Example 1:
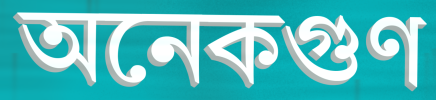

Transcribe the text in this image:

অনেকগুণ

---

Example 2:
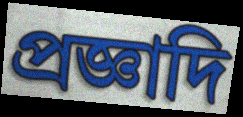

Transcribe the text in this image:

প্রজ্ঞাদি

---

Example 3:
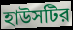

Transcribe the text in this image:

হাউসটির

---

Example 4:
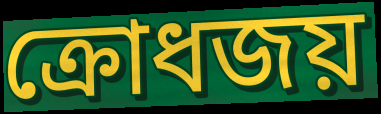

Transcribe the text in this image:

ক্রোধজয়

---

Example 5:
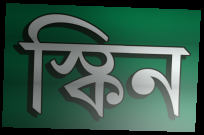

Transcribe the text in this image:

স্কিন